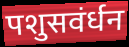
पशुसवंर्धन